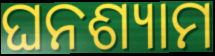
ଘନଶ୍ୟାମ